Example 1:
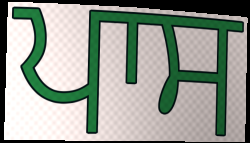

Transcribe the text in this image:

ਪਾਸ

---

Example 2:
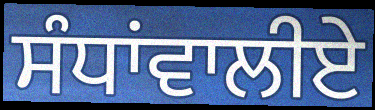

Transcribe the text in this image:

ਸੰਧਾਂਵਾਲੀਏ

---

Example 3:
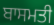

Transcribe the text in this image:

ਬਾਸਮਤੀ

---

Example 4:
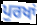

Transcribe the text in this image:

ਪੁਰਖਾਂ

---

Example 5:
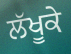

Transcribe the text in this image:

ਲੱਖੂਕੇ